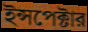
ইন্সপেক্টার